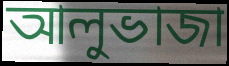
আলুভাজা